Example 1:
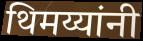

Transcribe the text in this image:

थिमय्यांनी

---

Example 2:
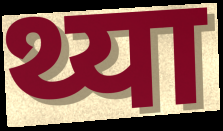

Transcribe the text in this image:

थ्या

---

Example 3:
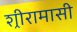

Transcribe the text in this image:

श्रीरामासी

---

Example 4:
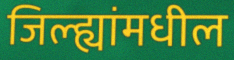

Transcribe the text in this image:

जिल्ह्यांमधील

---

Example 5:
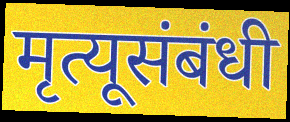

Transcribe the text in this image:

मृत्यूसंबंधी